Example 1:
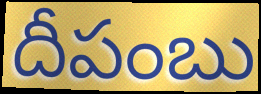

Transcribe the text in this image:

దీపంబు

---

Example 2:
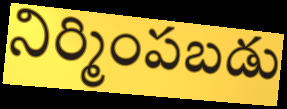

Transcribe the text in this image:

నిర్మింపబడు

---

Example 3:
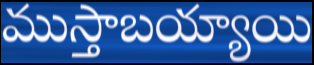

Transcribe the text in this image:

ముస్తాబయ్యాయి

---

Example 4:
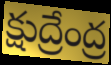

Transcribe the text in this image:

క్షుద్రేంద్ర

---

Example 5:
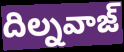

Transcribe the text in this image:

దిల్నవాజ్